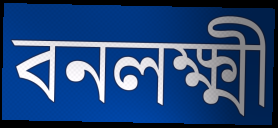
বনলক্ষ্মী